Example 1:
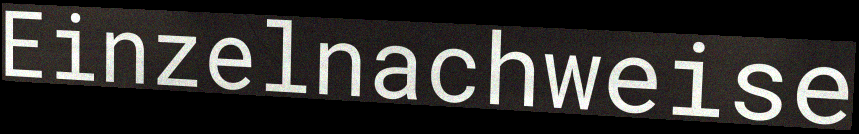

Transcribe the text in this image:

Einzelnachweise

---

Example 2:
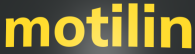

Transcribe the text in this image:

motilin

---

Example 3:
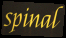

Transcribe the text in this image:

spinal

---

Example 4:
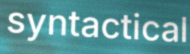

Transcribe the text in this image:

syntactical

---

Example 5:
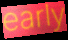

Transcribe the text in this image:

early